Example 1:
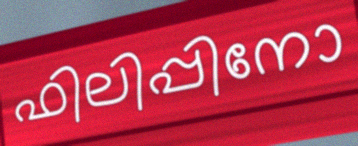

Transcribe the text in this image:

ഫിലിപ്പിനോ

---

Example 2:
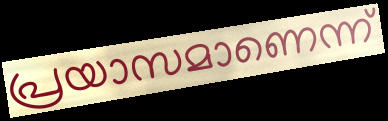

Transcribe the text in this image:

പ്രയാസമാണെന്ന്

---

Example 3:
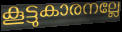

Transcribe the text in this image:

കൂട്ടുകാരനല്ലേ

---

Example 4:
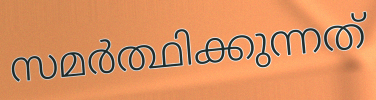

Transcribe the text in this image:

സമർത്ഥിക്കുന്നത്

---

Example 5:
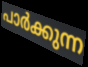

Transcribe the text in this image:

പാർക്കുന്ന